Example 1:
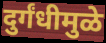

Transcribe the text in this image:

दुर्गंधीमुळे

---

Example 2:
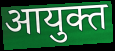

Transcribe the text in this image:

आयुक्त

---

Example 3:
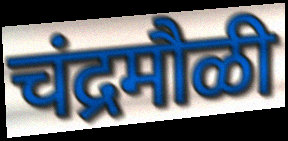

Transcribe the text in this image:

चंद्रमौळी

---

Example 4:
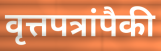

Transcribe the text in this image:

वृत्तपत्रांपैकी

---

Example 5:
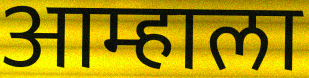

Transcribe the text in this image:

आम्हाला